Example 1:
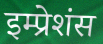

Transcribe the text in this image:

इम्प्रेशंस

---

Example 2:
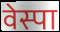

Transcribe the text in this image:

वेस्‍पा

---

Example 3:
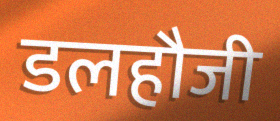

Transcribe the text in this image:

डलहौजी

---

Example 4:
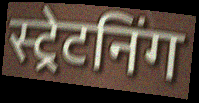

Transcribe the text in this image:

स्ट्रेटनिंग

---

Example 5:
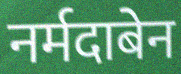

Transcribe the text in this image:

नर्मदाबेन